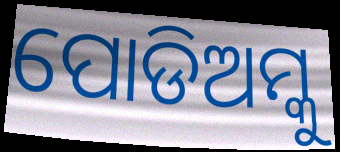
ପୋଡିଅମ୍କୁ